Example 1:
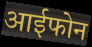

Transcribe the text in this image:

आईफोन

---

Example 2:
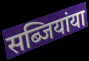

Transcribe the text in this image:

सब्जियांया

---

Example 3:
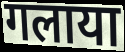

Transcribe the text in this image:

गलाया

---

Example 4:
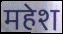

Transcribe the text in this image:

महेश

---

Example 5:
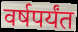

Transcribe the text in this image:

वर्षपर्यंत